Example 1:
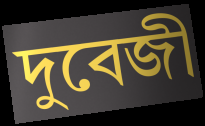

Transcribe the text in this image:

দুবেজী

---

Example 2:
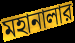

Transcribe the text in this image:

মহানালার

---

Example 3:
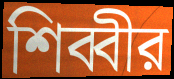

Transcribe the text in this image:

শিব্বীর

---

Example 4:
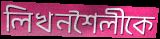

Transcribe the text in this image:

লিখনশৈলীকে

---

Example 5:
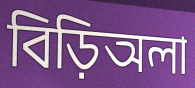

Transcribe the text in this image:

বিড়িঅলা